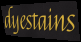
dyestains